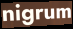
nigrum